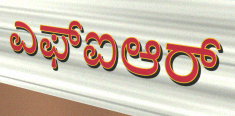
ಎಫ್ಐಆರ್